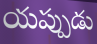
యప్పుడు